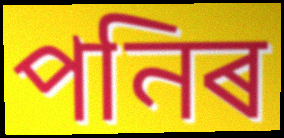
পনিৰ